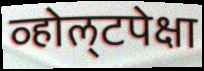
व्होल्टपेक्षा